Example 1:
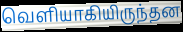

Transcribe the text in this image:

வெளியாகியிருந்தன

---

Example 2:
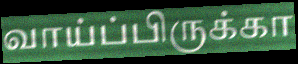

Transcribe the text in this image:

வாய்ப்பிருக்கா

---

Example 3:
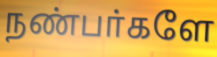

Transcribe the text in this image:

நண்பர்களே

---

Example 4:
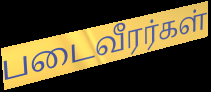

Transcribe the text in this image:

படைவீரர்கள்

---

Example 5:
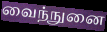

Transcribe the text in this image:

வைந்நுனை